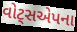
વોટ્સએપના